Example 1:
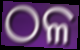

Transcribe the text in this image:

ଠଳ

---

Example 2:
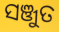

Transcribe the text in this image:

ସଞ୍ଜୁତ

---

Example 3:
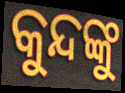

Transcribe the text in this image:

କୁନ୍ଦଙ୍କୁ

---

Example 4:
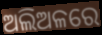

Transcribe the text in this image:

ଅଲିଅଳରେ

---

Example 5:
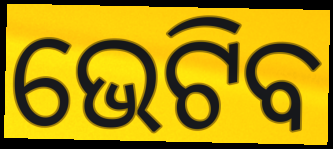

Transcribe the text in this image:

ଭେଟିବ